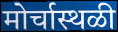
मोर्चास्थळी